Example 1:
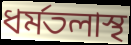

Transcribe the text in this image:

ধর্মতলাস্থ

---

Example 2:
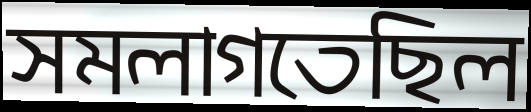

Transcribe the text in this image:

সমলাগতেছিল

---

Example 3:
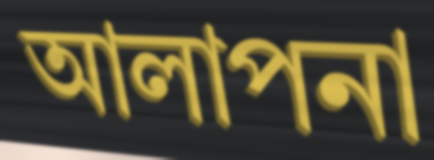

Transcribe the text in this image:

আলাপনা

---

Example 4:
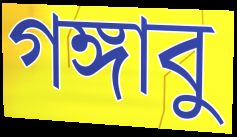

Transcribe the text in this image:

গঙ্গাবু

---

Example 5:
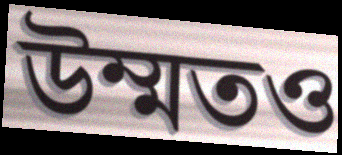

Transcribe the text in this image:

উম্মতও